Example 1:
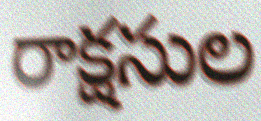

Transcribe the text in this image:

రాక్షసుల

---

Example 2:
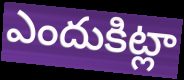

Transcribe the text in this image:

ఎందుకిట్లా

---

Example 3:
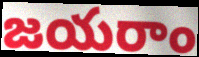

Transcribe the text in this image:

జయరాం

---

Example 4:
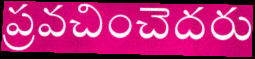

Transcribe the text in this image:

ప్రవచించెదరు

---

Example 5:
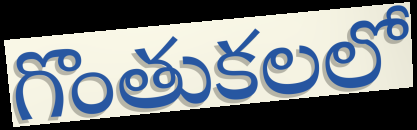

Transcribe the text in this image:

గొంతుకలలో